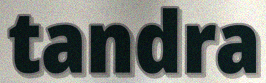
tandra